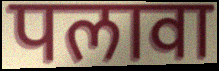
पलावा